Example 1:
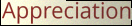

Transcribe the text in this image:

Appreciation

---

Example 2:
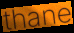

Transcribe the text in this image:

thane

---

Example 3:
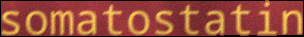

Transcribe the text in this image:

somatostatin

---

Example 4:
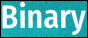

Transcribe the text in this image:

Binary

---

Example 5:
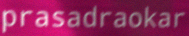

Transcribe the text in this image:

prasadraokar